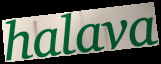
halava